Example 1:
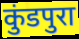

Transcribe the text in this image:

कुंडपुरा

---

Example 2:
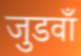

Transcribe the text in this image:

जुडवाँ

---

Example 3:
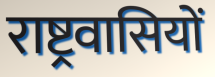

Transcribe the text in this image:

राष्ट्रवासियों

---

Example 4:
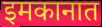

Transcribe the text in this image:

इमकानात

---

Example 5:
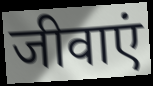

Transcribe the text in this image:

जीवाएं